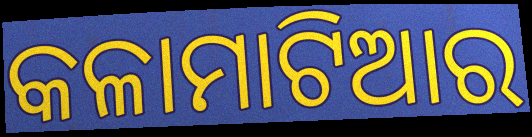
କଳାମାଟିଆର